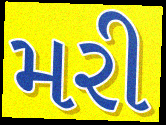
મરી